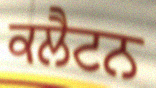
ਕਲੈਟਨ